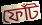
ফোঁট